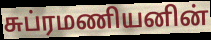
சுப்ரமணியனின்